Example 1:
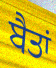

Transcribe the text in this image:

ਬੈਤਾਂ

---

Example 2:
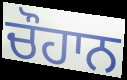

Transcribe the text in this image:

ਚੌਹਾਨ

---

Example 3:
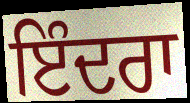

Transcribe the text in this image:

ਇੰਦਰਾ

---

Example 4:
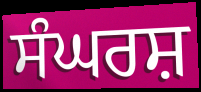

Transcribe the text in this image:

ਸੰਘਰਸ਼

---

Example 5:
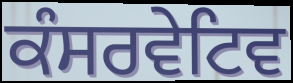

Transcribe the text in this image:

ਕੰਸਰਵੇਟਿਵ